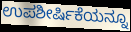
ಉಪಶೀರ್ಷಿಕೆಯನ್ನೂ